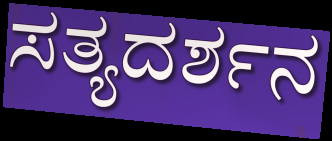
ಸತ್ಯದರ್ಶನ